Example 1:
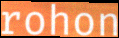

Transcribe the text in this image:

rohon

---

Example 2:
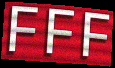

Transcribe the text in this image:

FFF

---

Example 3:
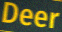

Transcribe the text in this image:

Deer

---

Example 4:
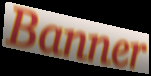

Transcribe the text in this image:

Banner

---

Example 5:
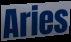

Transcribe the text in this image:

Aries